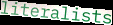
literalists